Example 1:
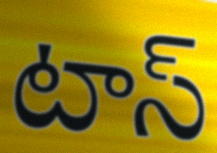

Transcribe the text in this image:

టాస్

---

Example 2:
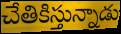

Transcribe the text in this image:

చేతికిస్తున్నాడు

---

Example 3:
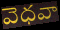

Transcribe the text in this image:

వెధవా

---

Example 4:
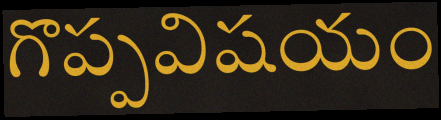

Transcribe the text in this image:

గొప్పవిషయం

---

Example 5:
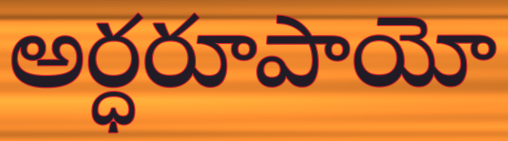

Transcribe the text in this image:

అర్ధరూపాయో